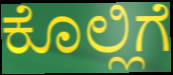
ಕೊಲ್ಲಿಗೆ